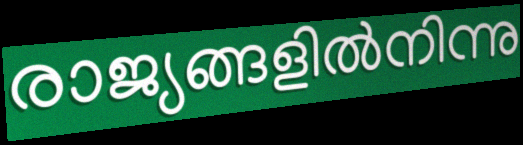
രാജ്യങ്ങളിൽനിന്നു